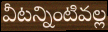
వీటన్నింటివల్ల